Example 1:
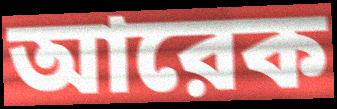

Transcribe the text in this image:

আরেক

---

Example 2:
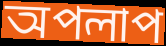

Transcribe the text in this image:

অপলাপ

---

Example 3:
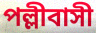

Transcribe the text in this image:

পল্লীবাসী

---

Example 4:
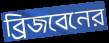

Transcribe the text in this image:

ব্রিজবেনের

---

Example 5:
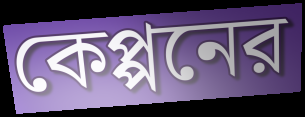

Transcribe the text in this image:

কেপ্পনের